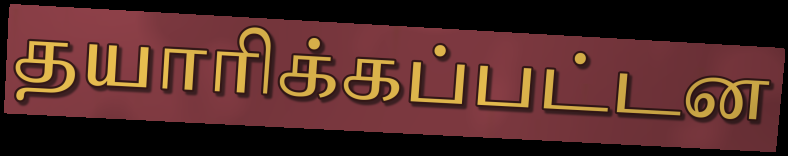
தயாரிக்கப்பட்டன